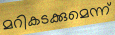
മറികടക്കുമെന്ന്